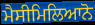
ਮੈਸੀਮਿਲਿਆਨੋ